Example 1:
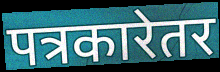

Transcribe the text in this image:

पत्रकारेतर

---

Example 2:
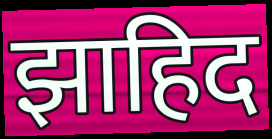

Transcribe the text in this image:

झाहिद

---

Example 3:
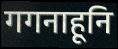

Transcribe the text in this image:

गगनाहूनि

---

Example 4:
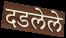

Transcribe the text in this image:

दडलेले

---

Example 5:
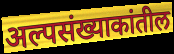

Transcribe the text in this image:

अल्पसंख्याकांतील